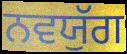
ਨਵਯੁੱਗ